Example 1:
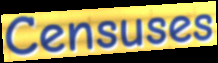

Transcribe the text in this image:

Censuses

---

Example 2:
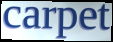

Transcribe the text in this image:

carpet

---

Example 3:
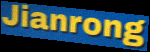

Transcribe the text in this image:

Jianrong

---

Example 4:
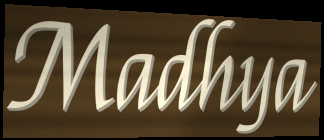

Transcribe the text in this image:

Madhya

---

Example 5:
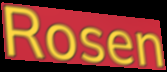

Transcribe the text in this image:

Rosen